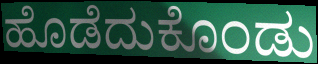
ಹೊಡೆದುಕೊಂಡು